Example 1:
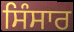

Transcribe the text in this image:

ਸਿੰਸਾਰ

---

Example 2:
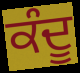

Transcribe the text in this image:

ਕੰਦੂ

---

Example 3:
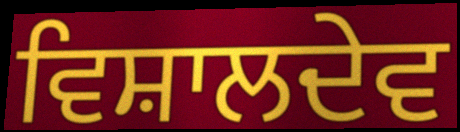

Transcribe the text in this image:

ਵਿਸ਼ਾਲਦੇਵ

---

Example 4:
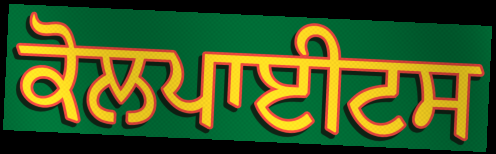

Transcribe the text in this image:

ਕੋਲਪਾਈਟਸ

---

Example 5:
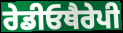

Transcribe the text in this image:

ਰੇਡੀਓਥੈਰੇਪੀ